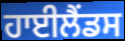
ਹਾਈਲੈਂਡਸ